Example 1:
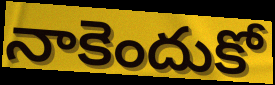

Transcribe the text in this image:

నాకెందుకో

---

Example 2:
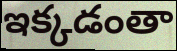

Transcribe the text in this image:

ఇక్కడంతా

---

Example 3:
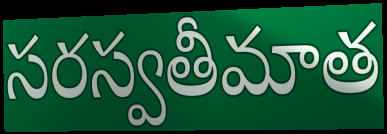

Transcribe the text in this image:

సరస్వతీమాత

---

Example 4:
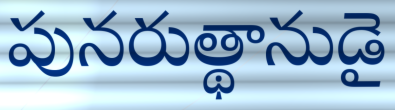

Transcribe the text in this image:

పునరుత్థానుడై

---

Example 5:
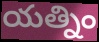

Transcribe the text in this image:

యత్నిం